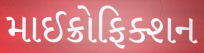
માઈક્રોફિક્શન